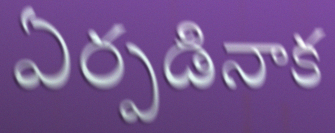
ఏర్పడినాక